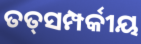
ତତ୍‍ସମ୍ପର୍କୀୟ